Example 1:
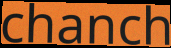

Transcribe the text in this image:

chanch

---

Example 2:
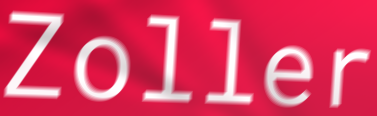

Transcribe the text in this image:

Zoller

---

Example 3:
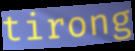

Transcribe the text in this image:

tirong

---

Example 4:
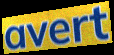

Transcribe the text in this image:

avert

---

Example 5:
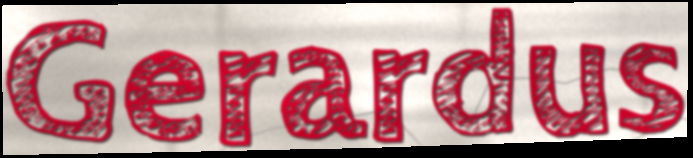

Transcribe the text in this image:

Gerardus